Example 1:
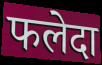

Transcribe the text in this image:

फलेदा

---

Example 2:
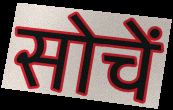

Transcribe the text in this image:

सोचें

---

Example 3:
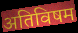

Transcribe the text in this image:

अतिविषम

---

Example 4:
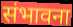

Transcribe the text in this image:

संभावना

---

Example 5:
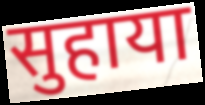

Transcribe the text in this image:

सुहाया